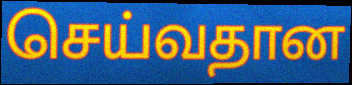
செய்வதான